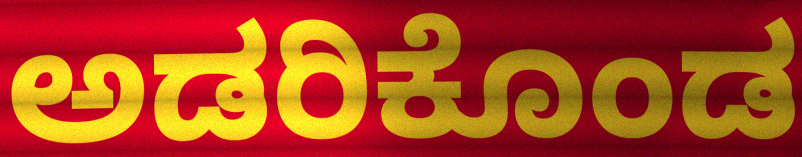
ಅಡರಿಕೊಂಡ